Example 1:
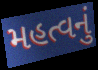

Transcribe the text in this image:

મહત્વનું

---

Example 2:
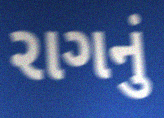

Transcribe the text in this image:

રાગનું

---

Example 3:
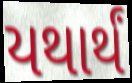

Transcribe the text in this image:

યથાર્થં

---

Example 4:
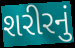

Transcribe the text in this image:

શરીરનું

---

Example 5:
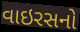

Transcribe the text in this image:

વાઇરસનો